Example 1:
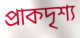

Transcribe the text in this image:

প্রাকদৃশ্য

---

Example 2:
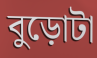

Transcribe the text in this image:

বুড়োটা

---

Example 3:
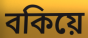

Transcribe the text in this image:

বকিয়ে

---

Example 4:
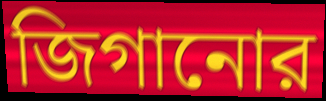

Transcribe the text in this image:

জিগানোর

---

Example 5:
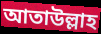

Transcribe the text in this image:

আতাউল্লাহ